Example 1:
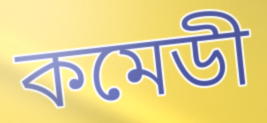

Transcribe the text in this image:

কমেডী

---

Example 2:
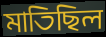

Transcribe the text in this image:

মাতিছিল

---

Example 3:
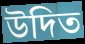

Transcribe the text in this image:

উদিত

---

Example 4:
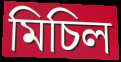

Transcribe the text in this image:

মিচিল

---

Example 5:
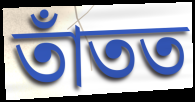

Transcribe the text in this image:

তাঁতত